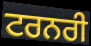
ਟਰਨਰੀ